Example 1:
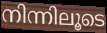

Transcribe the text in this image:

നിന്നിലൂടെ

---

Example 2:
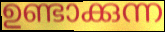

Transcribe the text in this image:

ഉണ്ടാക്കുന്ന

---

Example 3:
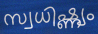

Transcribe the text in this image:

സ്വധിഷ്ണ്യം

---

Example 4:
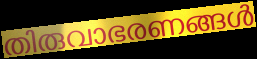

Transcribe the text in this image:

തിരുവാഭരണങ്ങൾ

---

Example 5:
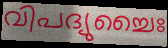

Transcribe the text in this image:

വിപദ്യുച്ചൈഃ